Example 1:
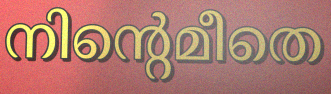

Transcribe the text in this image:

നിന്റെമീതെ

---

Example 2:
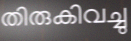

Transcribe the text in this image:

തിരുകിവച്ചു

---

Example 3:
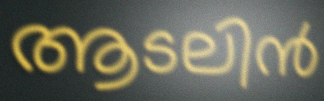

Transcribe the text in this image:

ആടലിൻ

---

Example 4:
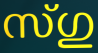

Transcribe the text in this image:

സ്ഗു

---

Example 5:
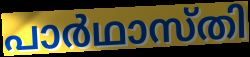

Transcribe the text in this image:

പാർഥാസ്തി